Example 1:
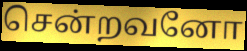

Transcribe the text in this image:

சென்றவனோ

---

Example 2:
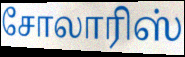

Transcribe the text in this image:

சோலாரிஸ்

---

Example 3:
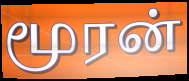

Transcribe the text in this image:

மூரன்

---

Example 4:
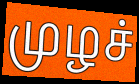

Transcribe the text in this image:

முழச்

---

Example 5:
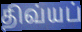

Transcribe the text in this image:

திவ்யப்